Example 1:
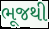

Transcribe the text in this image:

ભૂજથી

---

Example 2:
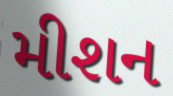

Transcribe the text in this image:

મીશન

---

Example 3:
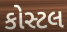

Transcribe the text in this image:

કોસ્ટલ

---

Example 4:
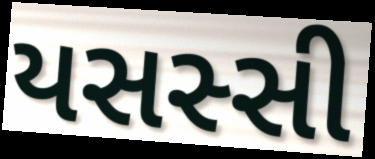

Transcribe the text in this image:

યસસ્સી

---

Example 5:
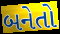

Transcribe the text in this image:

બનેતો